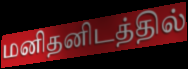
மனிதனிடத்தில்